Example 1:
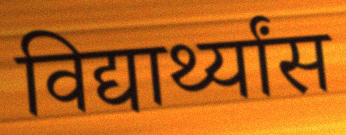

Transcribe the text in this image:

विद्यार्थ्यांस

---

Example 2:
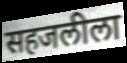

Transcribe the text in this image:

सहजलीला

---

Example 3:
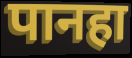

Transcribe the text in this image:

पानहा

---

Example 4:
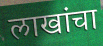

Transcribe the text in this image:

लाखांचा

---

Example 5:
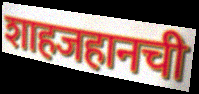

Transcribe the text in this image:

शाहजहानची